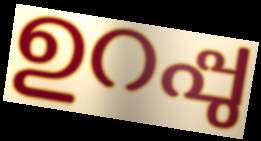
ഉറപ്പു